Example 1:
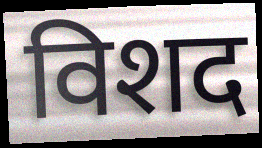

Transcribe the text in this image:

विशद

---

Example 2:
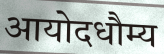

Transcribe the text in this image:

आयोदधौम्य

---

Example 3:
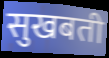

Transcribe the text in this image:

सुखबती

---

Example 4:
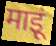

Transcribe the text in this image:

माइूं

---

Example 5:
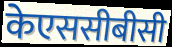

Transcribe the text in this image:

केएससीबीसी